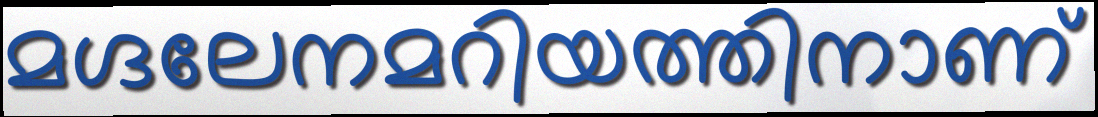
മഗ്ദലേനമറിയത്തിനാണ്